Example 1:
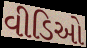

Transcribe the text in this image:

વીડિઓ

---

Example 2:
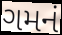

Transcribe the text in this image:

ગમનં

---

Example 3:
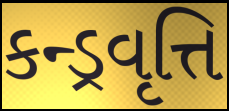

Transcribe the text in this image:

કન્ડ્રવૃત્તિ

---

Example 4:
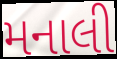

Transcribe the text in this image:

મનાલી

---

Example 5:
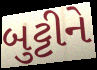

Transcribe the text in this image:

બુટ્ટીને